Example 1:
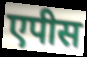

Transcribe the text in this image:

एपीस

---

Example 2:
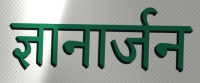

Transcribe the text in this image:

ज्ञानार्जन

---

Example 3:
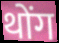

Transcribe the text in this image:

थोंग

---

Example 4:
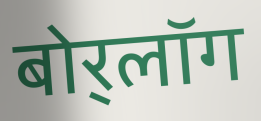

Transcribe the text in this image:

बोर्‌लॉग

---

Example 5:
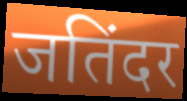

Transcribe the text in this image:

जतिंदर